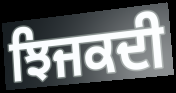
ਝਿਜਕਦੀ